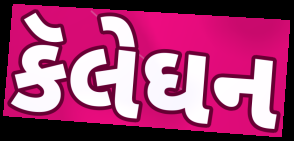
કૅલેઘન